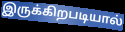
இருக்கிறபடியால்